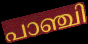
പാഞ്ചി